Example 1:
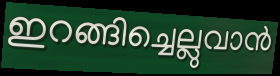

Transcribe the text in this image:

ഇറങ്ങിച്ചെല്ലുവാൻ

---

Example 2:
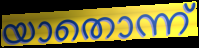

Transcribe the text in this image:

യാതൊന്ന്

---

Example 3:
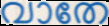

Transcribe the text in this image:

വാതേ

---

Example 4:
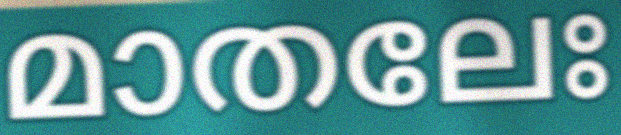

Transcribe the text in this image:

മാതലേഃ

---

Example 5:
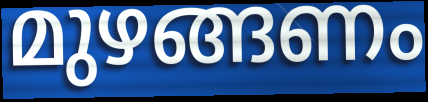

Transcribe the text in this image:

മുഴങ്ങണം